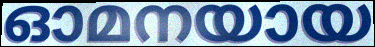
ഓമനയായ